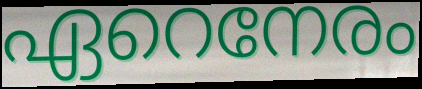
ഏറെനേരം